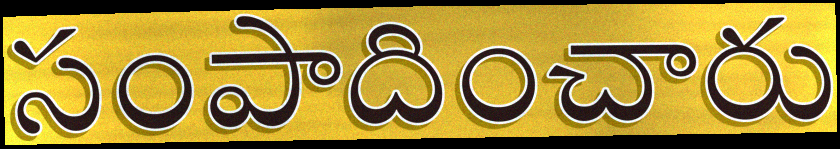
సంపాదించారు